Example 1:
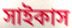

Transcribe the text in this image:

সাইকাস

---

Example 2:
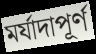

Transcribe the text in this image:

মর্যাদাপূর্ণ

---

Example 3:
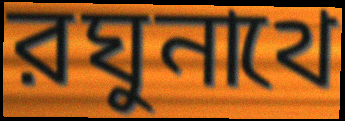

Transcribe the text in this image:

রঘুনাথে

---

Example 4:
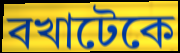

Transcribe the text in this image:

বখাটেকে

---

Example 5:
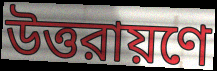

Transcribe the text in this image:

উত্তরায়ণে